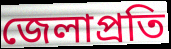
জেলাপ্রতি